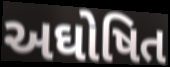
અઘોષિત